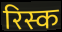
रिस्क